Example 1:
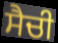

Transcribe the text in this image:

ਸੈਚੀ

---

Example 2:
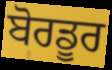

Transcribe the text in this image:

ਬੋਰਡੂਰ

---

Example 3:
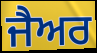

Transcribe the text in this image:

ਜੈਅਰ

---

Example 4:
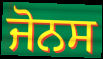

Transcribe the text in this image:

ਜੋਨਸ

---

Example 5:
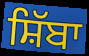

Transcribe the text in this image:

ਸ਼ਿੱਬਾ